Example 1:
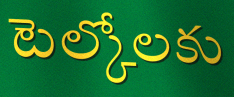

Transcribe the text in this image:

టెల్కోలకు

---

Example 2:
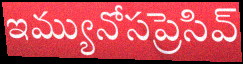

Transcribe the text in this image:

ఇమ్యునోసప్రెసివ్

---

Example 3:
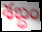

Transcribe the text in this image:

శబ్ధం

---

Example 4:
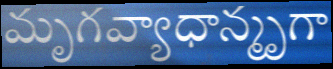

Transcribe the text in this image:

మృగవ్యాధాన్మృగా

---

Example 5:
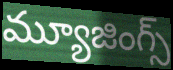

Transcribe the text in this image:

మ్యూజింగ్స్